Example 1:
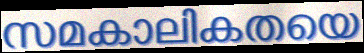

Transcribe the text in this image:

സമകാലികതയെ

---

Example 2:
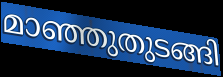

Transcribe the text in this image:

മാഞ്ഞുതുടങ്ങി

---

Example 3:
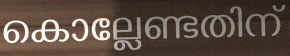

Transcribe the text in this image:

കൊല്ലേണ്ടതിന്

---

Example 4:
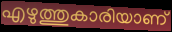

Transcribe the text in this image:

എഴുത്തുകാരിയാണ്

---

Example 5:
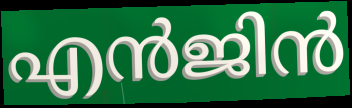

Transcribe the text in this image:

എൻജിൻ